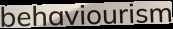
behaviourism